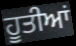
ਹੂਤੀਆਂ